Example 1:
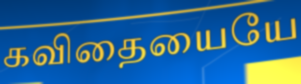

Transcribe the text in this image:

கவிதையையே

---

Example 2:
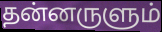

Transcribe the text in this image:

தன்னருளும்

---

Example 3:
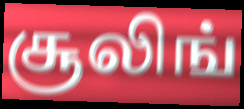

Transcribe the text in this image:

சூலிங்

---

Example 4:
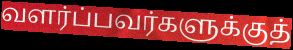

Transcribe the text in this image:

வளர்ப்பவர்களுக்குத்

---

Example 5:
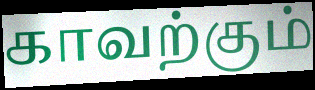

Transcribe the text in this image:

காவற்கும்